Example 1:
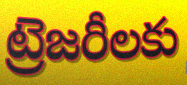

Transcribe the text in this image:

ట్రెజరీలకు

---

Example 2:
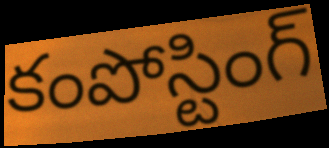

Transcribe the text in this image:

కంపోస్టింగ్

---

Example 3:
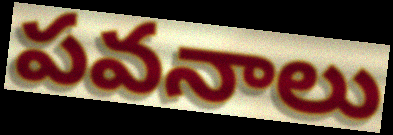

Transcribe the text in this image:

పవనాలు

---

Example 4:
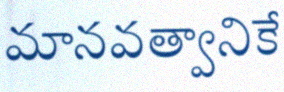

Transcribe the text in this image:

మానవత్వానికే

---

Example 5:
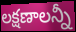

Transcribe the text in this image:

లక్షణాలన్నీ